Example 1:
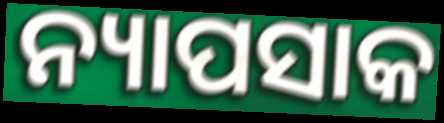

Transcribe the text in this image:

ନ୍ୟାପସାକ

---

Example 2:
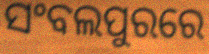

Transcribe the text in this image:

ସଂବଲପୁରରେ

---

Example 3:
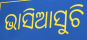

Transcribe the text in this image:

ଭାସିଆସୁଚି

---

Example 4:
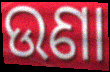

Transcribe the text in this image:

ଉଣା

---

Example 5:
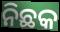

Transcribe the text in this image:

ନିଛକ